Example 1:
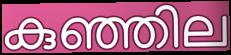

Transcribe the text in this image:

കുഞ്ഞില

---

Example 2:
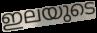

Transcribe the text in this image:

ഇലയുടെ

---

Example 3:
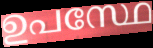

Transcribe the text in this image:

ഉപസ്ഥേ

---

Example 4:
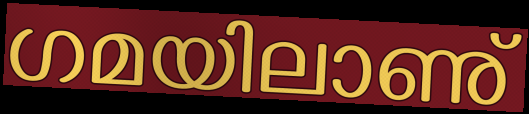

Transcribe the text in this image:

ഗമയിലാണു്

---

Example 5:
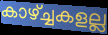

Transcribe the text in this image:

കാഴ്ച്ചകളല്ല